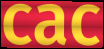
cac